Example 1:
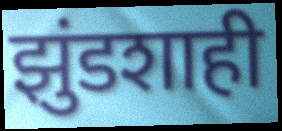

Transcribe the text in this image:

झुंडशाही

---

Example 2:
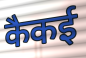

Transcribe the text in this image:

कैकई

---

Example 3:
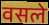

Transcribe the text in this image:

वसले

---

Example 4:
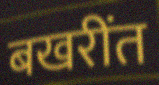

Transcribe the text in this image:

बखरींत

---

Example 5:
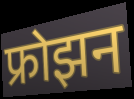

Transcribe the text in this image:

फ्रोझन